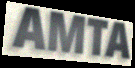
AMTA